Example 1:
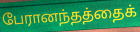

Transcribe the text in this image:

பேரானந்தத்தைக்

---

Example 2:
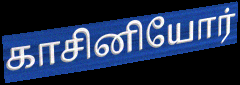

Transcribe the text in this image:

காசினியோர்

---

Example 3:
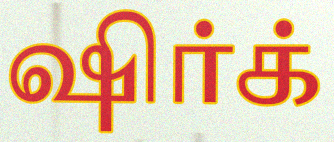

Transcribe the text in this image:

ஷிர்க்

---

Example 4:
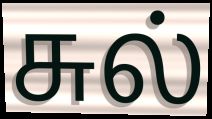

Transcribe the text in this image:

சுல்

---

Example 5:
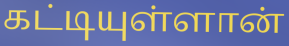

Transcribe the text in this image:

கட்டியுள்ளான்